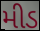
મીડ